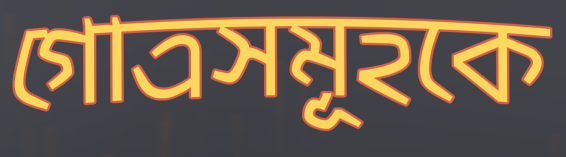
গোত্রসমূহকে